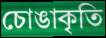
চোঙাকৃতি